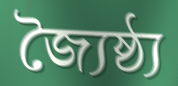
জ্যৈষ্ঠ্য